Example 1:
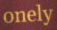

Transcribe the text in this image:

onely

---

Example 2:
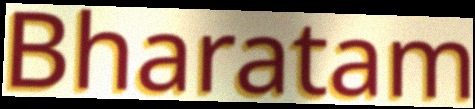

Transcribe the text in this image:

Bharatam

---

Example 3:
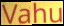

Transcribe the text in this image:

Vahu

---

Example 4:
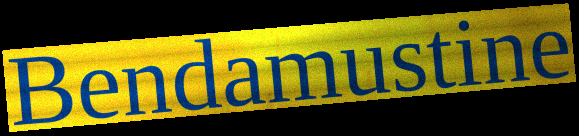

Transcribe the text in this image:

Bendamustine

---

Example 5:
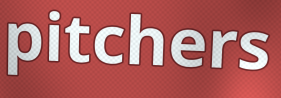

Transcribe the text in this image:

pitchers